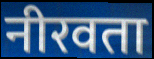
नीरवता